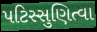
પટિસ્સુણિત્વા